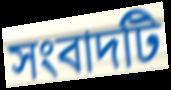
সংবাদটি